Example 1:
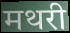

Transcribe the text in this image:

मथरी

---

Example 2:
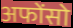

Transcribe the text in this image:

अफोंसो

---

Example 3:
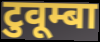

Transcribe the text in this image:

टुवूम्बा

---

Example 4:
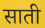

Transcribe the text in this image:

साती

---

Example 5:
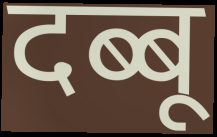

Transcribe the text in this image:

दब्बू